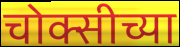
चोक्सीच्या